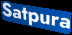
Satpura